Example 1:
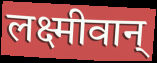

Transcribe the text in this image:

लक्ष्मीवान्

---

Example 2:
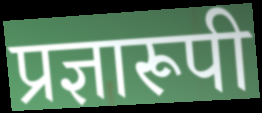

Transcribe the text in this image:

प्रज्ञारूपी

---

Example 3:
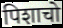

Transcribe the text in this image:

पिशाचो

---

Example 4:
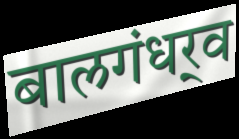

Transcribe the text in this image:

बालगंधर्व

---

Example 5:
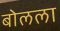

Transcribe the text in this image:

बोलला